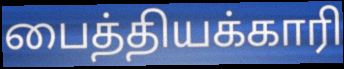
பைத்தியக்காரி